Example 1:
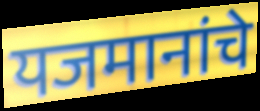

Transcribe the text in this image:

यजमानांचे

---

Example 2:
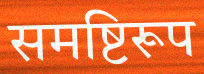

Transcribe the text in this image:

समष्टिरूप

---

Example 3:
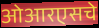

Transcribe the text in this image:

ओआरएसचे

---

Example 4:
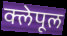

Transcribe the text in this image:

क्लेपूल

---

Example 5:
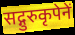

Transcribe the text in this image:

सद्गुरुकृपेनें